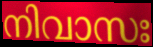
നിവാസഃ